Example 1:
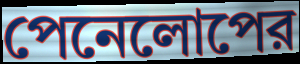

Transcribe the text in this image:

পেনেলোপের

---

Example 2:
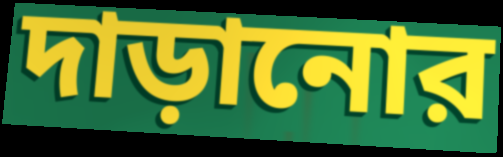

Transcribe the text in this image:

দাড়ানোর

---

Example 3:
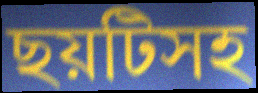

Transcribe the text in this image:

ছয়টিসহ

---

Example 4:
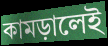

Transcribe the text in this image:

কামড়ালেই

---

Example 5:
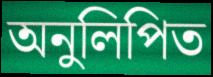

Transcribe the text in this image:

অনুলিপিত